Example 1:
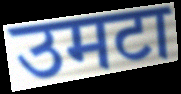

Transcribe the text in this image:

उमटा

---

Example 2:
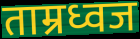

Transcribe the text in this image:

ताम्रध्वज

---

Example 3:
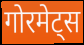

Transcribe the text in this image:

गोरमेट्स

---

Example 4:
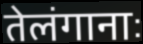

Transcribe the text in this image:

तेलंगानाः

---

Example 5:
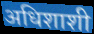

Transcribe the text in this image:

अधिशाशी